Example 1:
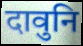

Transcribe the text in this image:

दावुनि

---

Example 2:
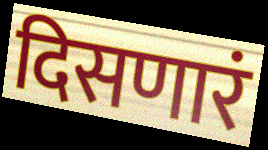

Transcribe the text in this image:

दिसणारं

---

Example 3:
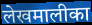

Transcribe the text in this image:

लेखमालीका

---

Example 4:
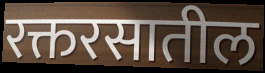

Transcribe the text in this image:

रक्तरसातील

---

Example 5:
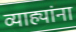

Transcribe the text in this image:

व्याह्यांना